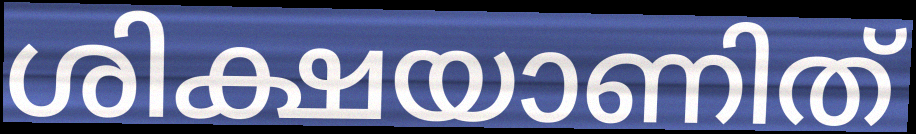
ശിക്ഷയാണിത്